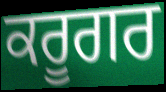
ਕਰੂਗਰ